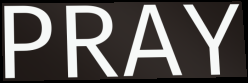
PRAY